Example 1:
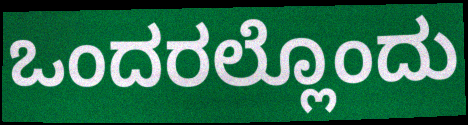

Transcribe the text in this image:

ಒಂದರಲ್ಲೊಂದು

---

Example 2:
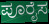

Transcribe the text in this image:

ಪೂರೈಸ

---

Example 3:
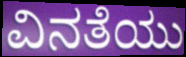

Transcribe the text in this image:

ವಿನತೆಯು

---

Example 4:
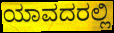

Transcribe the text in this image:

ಯಾವದರಲ್ಲಿ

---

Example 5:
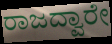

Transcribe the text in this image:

ರಾಜದ್ವಾರೇ